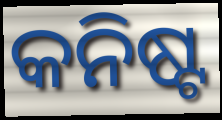
କନିଷ୍ଟ